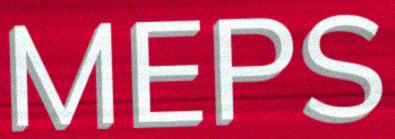
MEPS